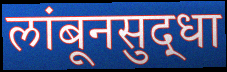
लांबूनसुद्धा